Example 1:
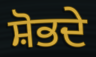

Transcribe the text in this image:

ਸ਼ੋਭਦੇ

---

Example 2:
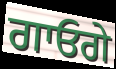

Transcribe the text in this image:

ਗਾਓਗੇ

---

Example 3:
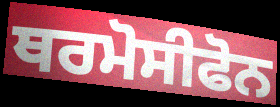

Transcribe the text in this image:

ਥਰਮੋਸੀਫੋਨ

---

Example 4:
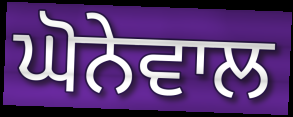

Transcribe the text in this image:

ਘੋਨੇਵਾਲ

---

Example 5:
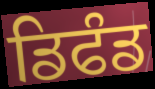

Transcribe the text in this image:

ਡਿਫੰਡ